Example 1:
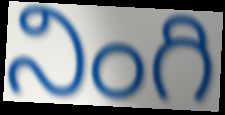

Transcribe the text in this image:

నింగి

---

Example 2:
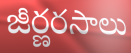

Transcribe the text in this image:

జీర్ణరసాలు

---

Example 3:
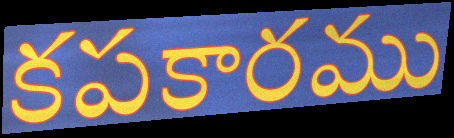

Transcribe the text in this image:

కపకారము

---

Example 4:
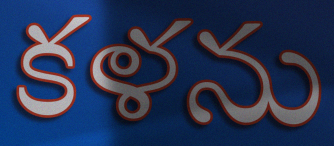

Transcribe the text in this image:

కళను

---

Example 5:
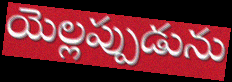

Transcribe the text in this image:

యెల్లప్పుడును